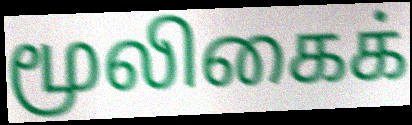
மூலிகைக்